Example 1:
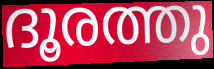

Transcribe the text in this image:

ദൂരത്തു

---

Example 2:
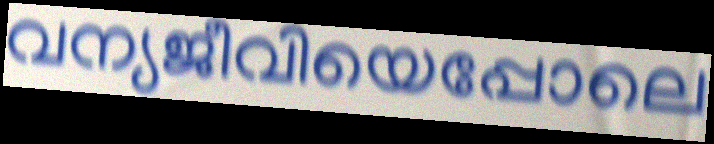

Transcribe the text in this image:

വന്യജീവിയെപ്പോലെ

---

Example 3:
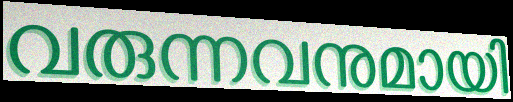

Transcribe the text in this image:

വരുന്നവനുമായി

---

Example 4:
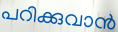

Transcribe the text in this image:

പറിക്കുവാൻ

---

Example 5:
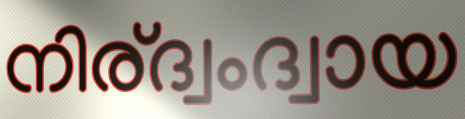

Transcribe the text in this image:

നിര്ദ്വംദ്വായ